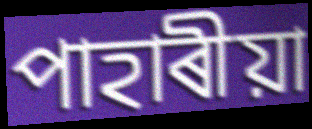
পাহাৰীয়া